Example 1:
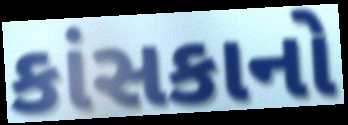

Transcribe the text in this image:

કાંસકાનો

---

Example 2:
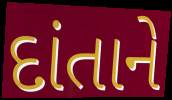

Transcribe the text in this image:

દાંતાને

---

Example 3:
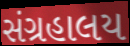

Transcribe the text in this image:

સંગ્રહાલય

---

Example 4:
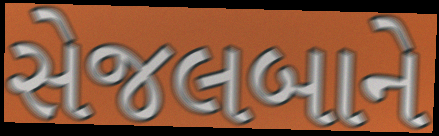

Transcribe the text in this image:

સેજલબાને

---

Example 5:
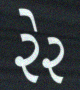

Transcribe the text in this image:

રેર